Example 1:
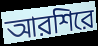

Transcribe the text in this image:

আরশিরে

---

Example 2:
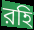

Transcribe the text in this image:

রহি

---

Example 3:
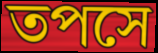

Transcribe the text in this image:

তপসে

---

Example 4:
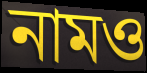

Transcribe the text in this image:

নামও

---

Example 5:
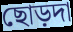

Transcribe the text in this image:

ছোড়দা